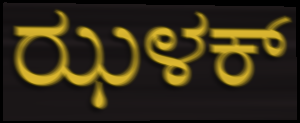
ಝಳಕ್